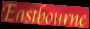
Eastbourne